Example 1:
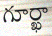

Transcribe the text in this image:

గూర్ఖా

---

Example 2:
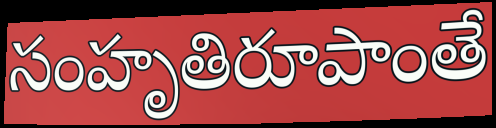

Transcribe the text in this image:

సంహృతిరూపాంతే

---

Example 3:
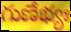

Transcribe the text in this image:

గుణేభ్యః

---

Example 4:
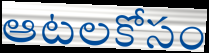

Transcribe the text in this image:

ఆటలకోసం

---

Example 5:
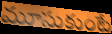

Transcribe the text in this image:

మూసుకుంటే